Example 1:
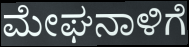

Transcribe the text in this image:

ಮೇಘನಾಳಿಗೆ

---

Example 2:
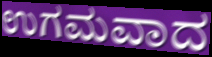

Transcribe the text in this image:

ಉಗಮವಾದ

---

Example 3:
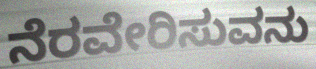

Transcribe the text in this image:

ನೆರವೇರಿಸುವನು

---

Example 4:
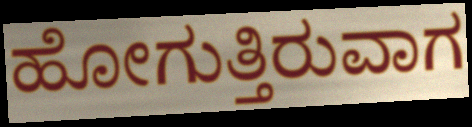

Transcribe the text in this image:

ಹೋಗುತ್ತಿರುವಾಗ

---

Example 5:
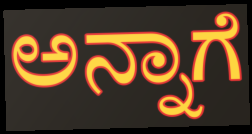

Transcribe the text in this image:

ಅನ್ನಾಗೆ